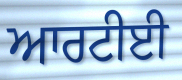
ਆਰਟੀਈ